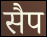
सैप